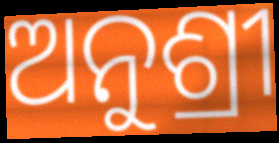
ଅନୁଶ୍ରୀ